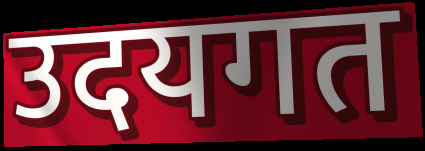
उदयगत